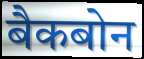
बैकबोन